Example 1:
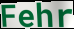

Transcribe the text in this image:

Fehr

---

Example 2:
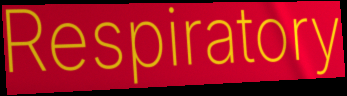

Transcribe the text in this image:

Respiratory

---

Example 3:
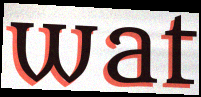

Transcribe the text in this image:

wat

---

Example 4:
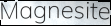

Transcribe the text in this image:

Magnesite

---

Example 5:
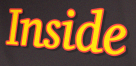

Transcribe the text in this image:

Inside